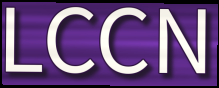
LCCN